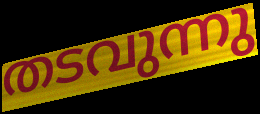
തടവുന്നു